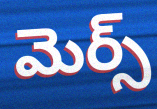
మెర్స్